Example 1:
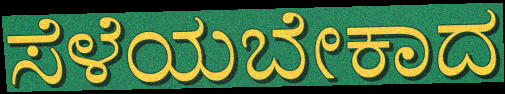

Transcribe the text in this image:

ಸೆಳೆಯಬೇಕಾದ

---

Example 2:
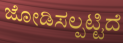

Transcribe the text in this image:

ಜೋಡಿಸಲ್ಪಟ್ಟಿದೆ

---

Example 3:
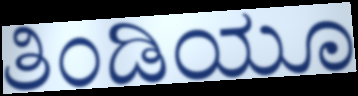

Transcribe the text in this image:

ತಿಂಡಿಯೂ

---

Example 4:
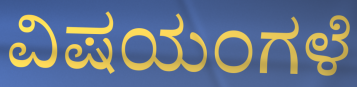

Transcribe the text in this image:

ವಿಷಯಂಗಳೆ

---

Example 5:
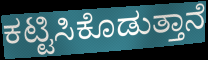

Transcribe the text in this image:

ಕಟ್ಟಿಸಿಕೊಡುತ್ತಾನೆ